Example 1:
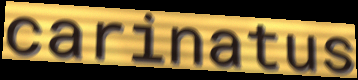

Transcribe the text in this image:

carinatus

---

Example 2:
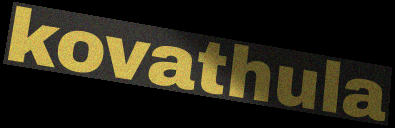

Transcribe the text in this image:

kovathula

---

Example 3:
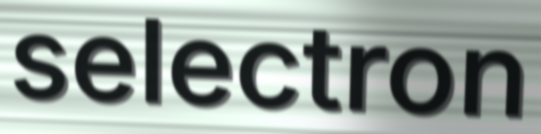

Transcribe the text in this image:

selectron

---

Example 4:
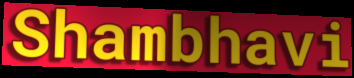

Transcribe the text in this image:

Shambhavi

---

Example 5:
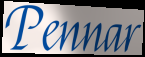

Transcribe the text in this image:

Pennar